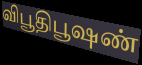
விபூதிபூஷண்